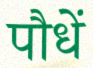
पौधें